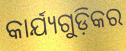
କାର୍ଯ୍ୟଗୁଡ଼ିକର